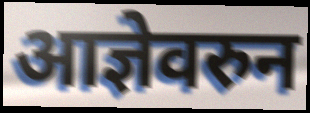
आज्ञेवरुन